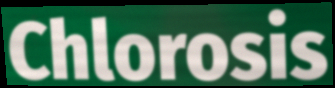
Chlorosis